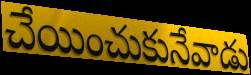
చేయించుకునేవాడు